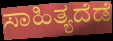
ಸಾಹಿತ್ಯದೆಡೆ